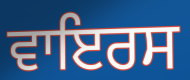
ਵਾਇਰਸ